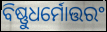
ବିଷ୍ଣୁଧର୍ମୋତ୍ତରଂ